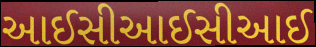
આઈસીઆઈસીઆઈ